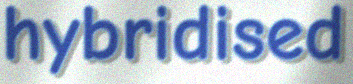
hybridised